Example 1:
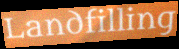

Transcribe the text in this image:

Landfilling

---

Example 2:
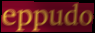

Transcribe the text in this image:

eppudo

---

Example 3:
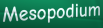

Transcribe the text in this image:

Mesopodium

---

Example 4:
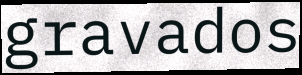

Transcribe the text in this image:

gravados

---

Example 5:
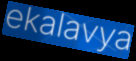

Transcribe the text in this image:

ekalavya